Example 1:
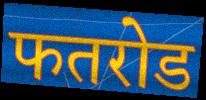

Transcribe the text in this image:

फतरोड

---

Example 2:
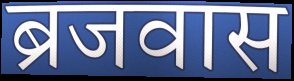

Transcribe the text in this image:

ब्रजवास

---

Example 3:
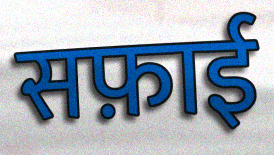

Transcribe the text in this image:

सफ़ाई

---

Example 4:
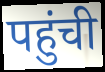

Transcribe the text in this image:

पहुंची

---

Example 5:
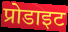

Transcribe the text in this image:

प्रोडाइट